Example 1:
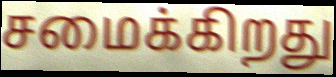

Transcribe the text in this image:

சமைக்கிறது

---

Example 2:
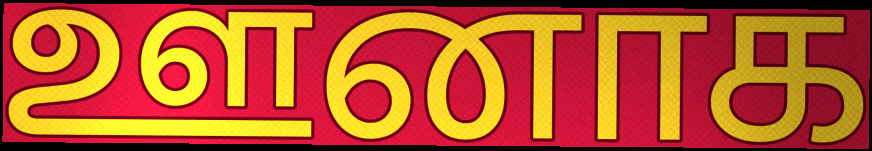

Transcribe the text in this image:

ஊனாக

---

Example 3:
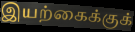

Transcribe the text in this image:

இயற்கைக்குக்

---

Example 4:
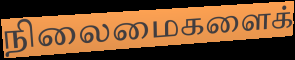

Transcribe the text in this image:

நிலைமைகளைக்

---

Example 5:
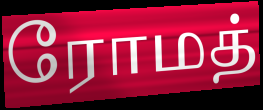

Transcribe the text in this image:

ரோமத்